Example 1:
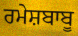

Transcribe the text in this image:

ਰਮੇਸ਼ਬਾਬੂ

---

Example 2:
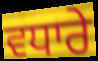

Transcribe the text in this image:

ਵਧਾਰੇ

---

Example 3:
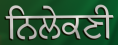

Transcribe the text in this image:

ਨਿਲੇਕਣੀ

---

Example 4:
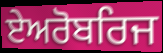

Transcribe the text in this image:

ਏਅਰੋਬਰਿਜ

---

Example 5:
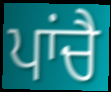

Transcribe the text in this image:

ਪਾਂਚੈ